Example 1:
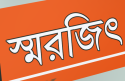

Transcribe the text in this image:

স্মরজিৎ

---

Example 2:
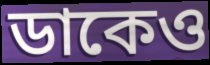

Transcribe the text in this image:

ডাকেও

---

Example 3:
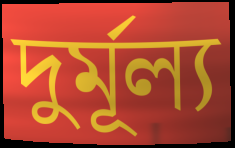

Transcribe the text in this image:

দুর্মূল্য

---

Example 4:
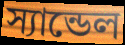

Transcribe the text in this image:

স্যান্ডেল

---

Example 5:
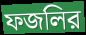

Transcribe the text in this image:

ফজলির